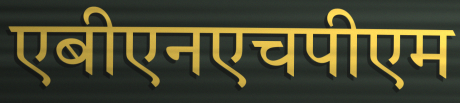
एबीएनएचपीएम